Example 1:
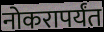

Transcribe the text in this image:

नोकरापर्यंत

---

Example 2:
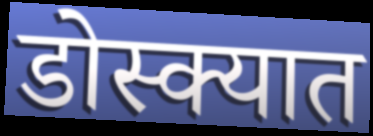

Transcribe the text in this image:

डोस्क्यात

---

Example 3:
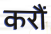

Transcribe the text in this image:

करौं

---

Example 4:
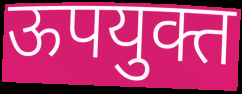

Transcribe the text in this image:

ऊपयुक्त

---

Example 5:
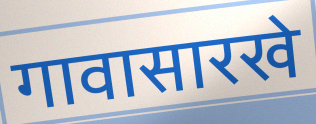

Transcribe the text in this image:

गावासारखे